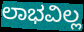
ಲಾಭವಿಲ್ಲ